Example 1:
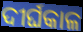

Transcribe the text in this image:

ଦୀର୍ଘକାଳ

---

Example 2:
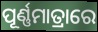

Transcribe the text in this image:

ପୂର୍ଣ୍ଣମାତ୍ରାରେ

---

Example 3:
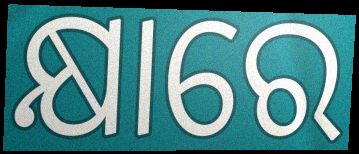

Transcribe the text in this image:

କ୍ଷାରେ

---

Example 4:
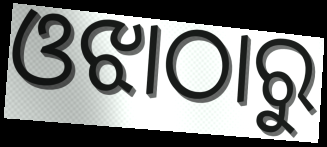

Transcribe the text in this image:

ଓଝାଠାରୁ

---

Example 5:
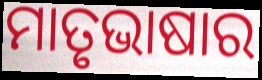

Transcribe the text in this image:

ମାତୃଭାଷାର